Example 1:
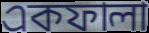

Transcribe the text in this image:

একফালা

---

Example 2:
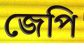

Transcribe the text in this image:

জেপি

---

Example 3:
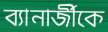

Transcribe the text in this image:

ব্যানার্জীকে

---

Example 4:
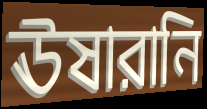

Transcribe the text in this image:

ঊষারানি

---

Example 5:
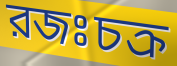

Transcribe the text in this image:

রজঃচক্র